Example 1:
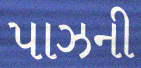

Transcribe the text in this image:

પાઝની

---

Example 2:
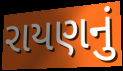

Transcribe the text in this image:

રાયણનું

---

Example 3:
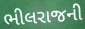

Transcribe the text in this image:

ભીલરાજની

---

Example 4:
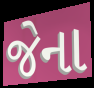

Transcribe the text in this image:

જેના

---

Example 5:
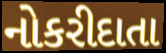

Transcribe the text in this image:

નોકરીદાતા